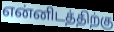
என்னிடத்திற்கு